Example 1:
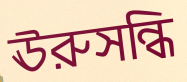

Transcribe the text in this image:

ঊরুসন্ধি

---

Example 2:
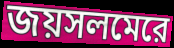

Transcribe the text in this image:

জয়সলমেরে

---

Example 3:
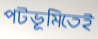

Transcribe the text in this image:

পটভূমিতেই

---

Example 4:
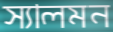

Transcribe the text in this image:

স্যালমন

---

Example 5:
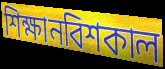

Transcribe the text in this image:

শিক্ষানবিশকাল